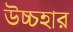
উচ্চহার